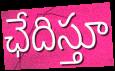
ఛేదిస్తూ